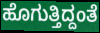
ಹೊಗುತ್ತಿದ್ದಂತೆ